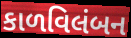
કાળવિલંબન